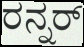
ರನ್ನರ್